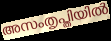
അസംതൃപ്തിയിൽ